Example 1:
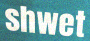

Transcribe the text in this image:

shwet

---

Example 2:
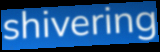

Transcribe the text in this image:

shivering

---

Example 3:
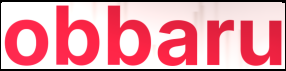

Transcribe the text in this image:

obbaru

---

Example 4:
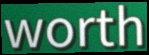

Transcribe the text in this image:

worth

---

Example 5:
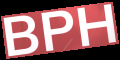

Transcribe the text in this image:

BPH